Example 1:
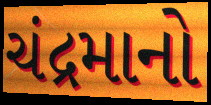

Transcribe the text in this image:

ચંદ્રમાનો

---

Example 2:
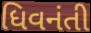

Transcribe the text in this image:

ધિવનંતી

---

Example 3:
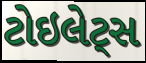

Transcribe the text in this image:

ટોઇલેટ્સ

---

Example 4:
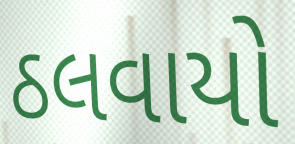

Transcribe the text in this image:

ઠલવાયો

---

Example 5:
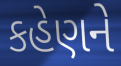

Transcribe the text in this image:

કહેણને